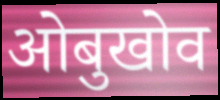
ओबुखोव